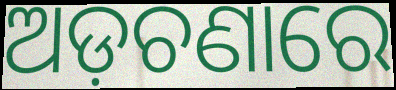
ଅଡ଼ଚଣାରେ